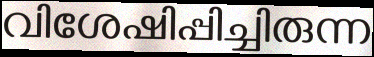
വിശേഷിപ്പിച്ചിരുന്ന